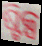
ଷ୍ଟିକ୍ସ